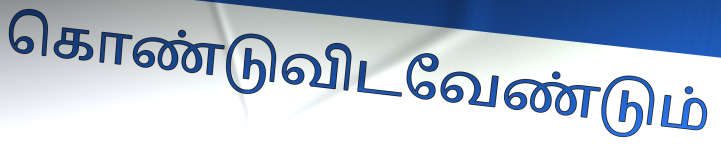
கொண்டுவிடவேண்டும்